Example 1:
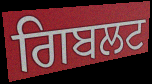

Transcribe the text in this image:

ਗਿਬਲਟ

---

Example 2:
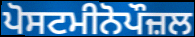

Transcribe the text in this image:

ਪੋਸਟਮੀਨੋਪੌਜ਼ਲ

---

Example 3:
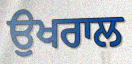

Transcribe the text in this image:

ਉਖਰਾਲ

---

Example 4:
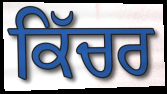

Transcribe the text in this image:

ਕਿੱਚਰ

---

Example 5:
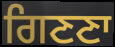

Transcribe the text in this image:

ਗਿਣਣਾ